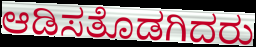
ಆಡಿಸತೊಡಗಿದರು